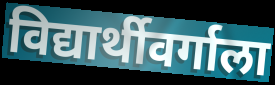
विद्यार्थीवर्गाला